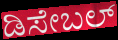
ಡಿಸೇಬಲ್